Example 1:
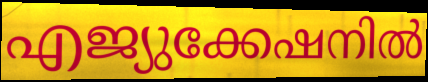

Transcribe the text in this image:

എജ്യുക്കേഷനിൽ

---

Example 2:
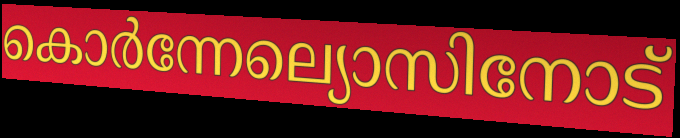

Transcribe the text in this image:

കൊർന്നേല്യൊസിനോട്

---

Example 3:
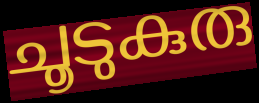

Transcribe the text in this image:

ചൂടുകുരു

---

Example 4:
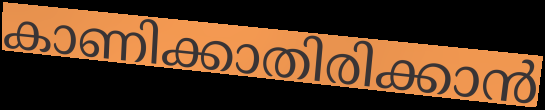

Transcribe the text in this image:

കാണിക്കാതിരിക്കാൻ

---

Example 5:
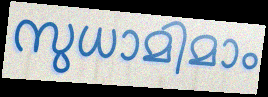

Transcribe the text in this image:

സുധാമിമാം